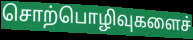
சொற்பொழிவுகளைச்